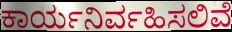
ಕಾರ್ಯನಿರ್ವಹಿಸಲಿವೆ